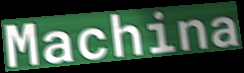
Machina